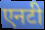
एनटी